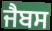
ਜੈਬਸ